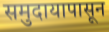
समुदायापासून